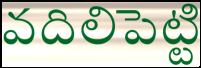
వదిలిపెట్టి